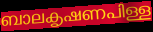
ബാലകൃഷണപിള്ള